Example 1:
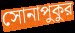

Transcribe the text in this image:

সোনাপুকুর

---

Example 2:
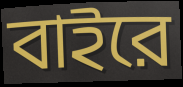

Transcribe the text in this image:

বাইরে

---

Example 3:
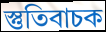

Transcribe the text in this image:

স্তুতিবাচক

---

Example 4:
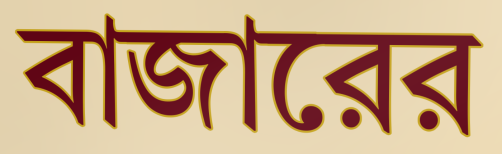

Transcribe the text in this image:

বাজারের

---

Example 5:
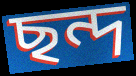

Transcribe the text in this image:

ছন্দ